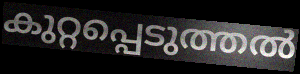
കുറ്റപ്പെടുത്തൽ